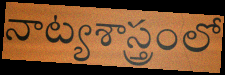
నాట్యశాస్త్రంలో